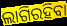
ଲାଗିରହିବା